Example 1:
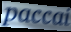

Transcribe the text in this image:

paccai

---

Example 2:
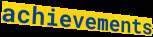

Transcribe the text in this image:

achievements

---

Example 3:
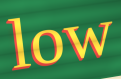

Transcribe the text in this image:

low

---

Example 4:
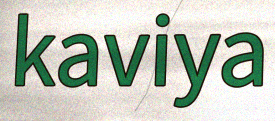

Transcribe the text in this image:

kaviya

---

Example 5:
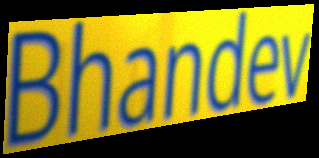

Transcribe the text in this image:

Bhandev